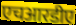
एचआरडीए